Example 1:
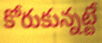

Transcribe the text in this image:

కోరుకున్నట్టే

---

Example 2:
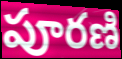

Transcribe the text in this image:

పూరణి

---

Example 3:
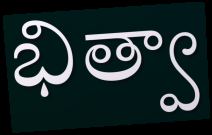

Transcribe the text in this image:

భిత్వా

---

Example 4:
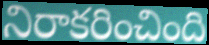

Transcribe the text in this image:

నిరాకరించింది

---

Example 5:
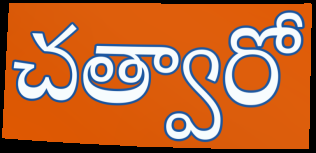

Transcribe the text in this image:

చత్వారో